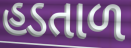
હડતાળ